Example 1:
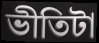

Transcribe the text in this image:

ভীতিটা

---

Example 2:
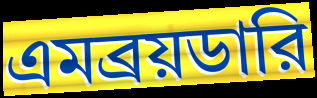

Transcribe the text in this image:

এমব্রয়ডারি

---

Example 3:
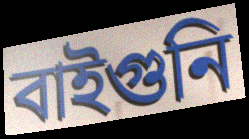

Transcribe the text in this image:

বাইগুনি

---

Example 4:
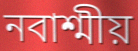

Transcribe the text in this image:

নবাশ্মীয়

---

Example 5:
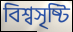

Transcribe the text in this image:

বিশ্বসৃষ্টি